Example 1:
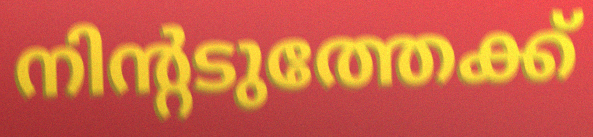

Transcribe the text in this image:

നിന്റടുത്തേക്ക്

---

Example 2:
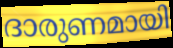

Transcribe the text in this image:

ദാരുണമായി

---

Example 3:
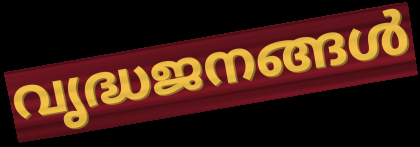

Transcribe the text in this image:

വൃദ്ധജനങ്ങൾ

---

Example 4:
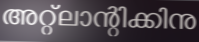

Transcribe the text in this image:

അറ്റ്ലാന്റിക്കിനു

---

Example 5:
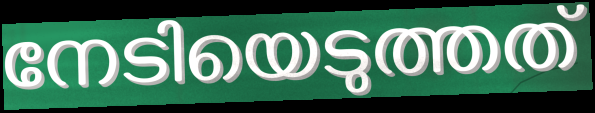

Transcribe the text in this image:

നേടിയെടുത്തത്